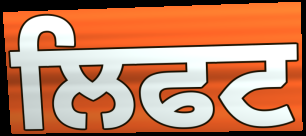
ਲਿਫਟ